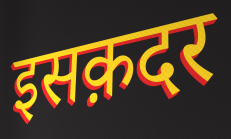
इसक़दर